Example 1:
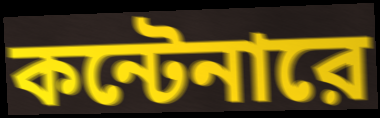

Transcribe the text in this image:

কন্টেনারে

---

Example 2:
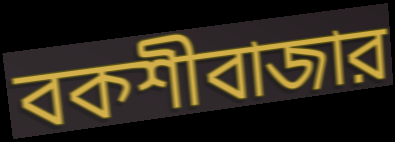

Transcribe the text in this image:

বকশীবাজার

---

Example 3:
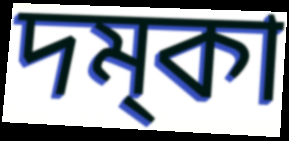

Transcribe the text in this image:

দম্‌কা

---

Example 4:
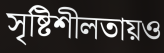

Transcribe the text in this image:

সৃষ্টিশীলতায়ও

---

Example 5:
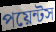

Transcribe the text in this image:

পয়েন্টস